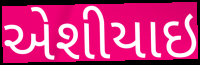
એશીયાઇ